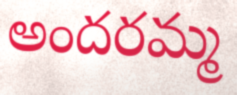
అందరమ్మ